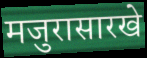
मजुरासारखे